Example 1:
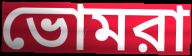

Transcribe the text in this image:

ভোমরা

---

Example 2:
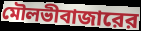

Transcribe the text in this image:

মৌলভীবাজারের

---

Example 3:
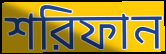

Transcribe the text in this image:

শরিফান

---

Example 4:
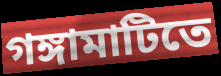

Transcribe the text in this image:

গঙ্গামাটিতে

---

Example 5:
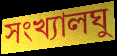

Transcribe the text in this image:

সংখ্যালঘু